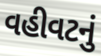
વહીવટનું